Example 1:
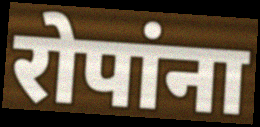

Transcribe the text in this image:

रोपांना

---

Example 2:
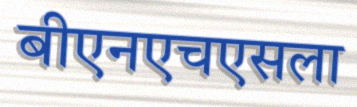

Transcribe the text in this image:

बीएनएचएसला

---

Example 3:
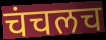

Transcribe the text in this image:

चंचलच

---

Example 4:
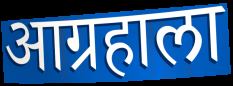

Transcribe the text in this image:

आग्रहाला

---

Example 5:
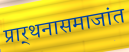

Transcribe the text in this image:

प्रार्थनासमाजांत